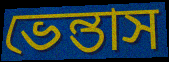
ভেন্তাস